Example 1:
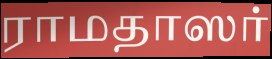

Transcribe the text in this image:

ராமதாஸர்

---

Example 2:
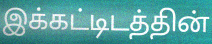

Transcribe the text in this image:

இக்கட்டிடத்தின்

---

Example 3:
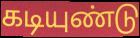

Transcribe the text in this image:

கடியுண்டு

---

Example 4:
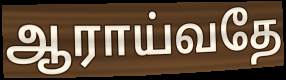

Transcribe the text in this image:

ஆராய்வதே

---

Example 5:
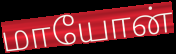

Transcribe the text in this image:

மாயோன்